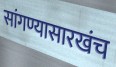
सांगण्यासारखंच